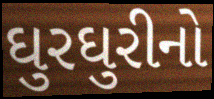
ઘુરઘુરીનો